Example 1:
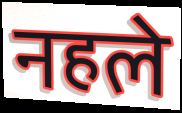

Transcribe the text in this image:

नहले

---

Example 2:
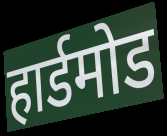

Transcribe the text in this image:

हार्डमोड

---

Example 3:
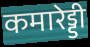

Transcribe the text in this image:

कमारेड्डी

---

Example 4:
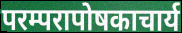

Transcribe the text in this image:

परम्परापोषकाचार्य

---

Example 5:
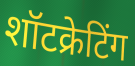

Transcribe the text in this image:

शॉटक्रेटिंग